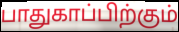
பாதுகாப்பிற்கும்